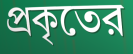
প্রকৃতের